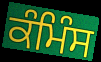
ਕੰਮਿੰਸ